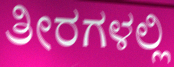
ತೀರಗಳಲ್ಲಿ